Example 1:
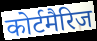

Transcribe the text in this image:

कोर्टमैरिज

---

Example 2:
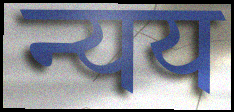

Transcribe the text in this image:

न्यय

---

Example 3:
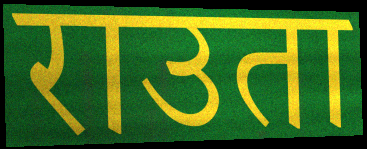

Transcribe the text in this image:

राउता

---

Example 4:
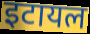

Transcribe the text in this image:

इटायल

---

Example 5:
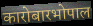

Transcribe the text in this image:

कारोबारभोपाल